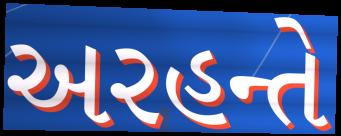
અરહન્તે